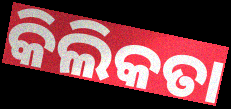
କିଲିକତା